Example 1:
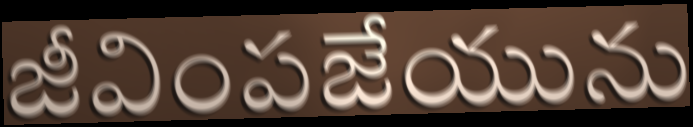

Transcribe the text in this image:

జీవింపజేయును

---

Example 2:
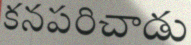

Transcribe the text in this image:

కనపరిచాడు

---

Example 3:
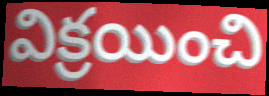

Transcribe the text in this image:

విక్రయించి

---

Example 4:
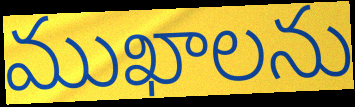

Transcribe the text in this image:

ముఖాలను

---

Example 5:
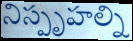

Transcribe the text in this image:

నిస్పృహల్ని